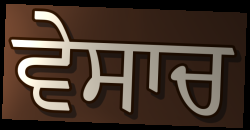
ਵੇਸਾਚ